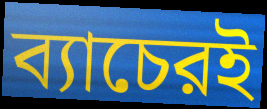
ব্যাচেরই